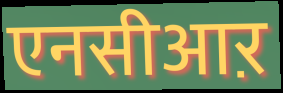
एनसीआऱ